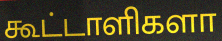
கூட்டாளிகளா